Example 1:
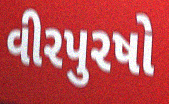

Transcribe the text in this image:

વીરપુરષો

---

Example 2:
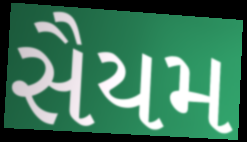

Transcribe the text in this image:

સૈયમ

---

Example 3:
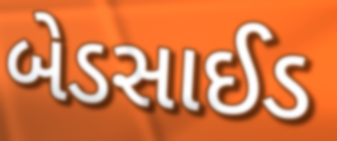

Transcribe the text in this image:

બેડસાઈડ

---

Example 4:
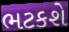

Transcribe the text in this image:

ભટકશે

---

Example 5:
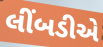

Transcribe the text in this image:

લીંબડીએ